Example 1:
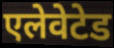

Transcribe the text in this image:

एलेवेटेड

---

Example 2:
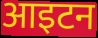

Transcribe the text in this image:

आइटन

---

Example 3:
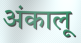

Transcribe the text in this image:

अंकालू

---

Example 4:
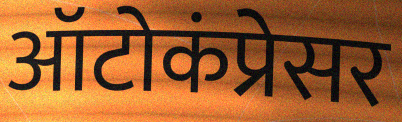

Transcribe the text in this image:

ऑटोकंप्रेसर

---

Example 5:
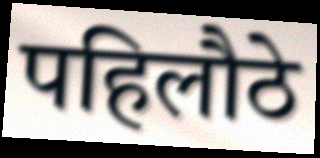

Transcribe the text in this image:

पहिलौठे